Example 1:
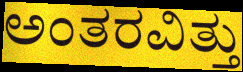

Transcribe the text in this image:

ಅಂತರವಿತ್ತು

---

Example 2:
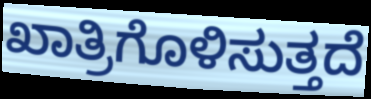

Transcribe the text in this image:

ಖಾತ್ರಿಗೊಳಿಸುತ್ತದೆ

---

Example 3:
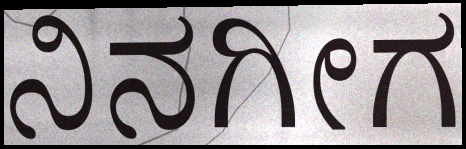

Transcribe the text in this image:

ನಿನಗೀಗ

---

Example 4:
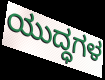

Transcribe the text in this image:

ಯುದ್ಧಗಳ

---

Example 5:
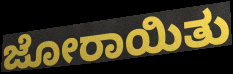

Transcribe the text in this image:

ಜೋರಾಯಿತು